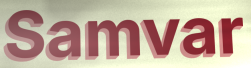
Samvar